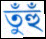
তুঁহুঁ